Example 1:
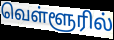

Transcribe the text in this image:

வெள்ளூரில்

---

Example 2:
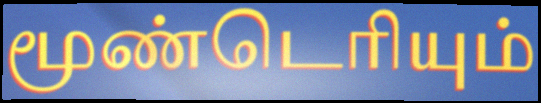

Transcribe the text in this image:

மூண்டெரியும்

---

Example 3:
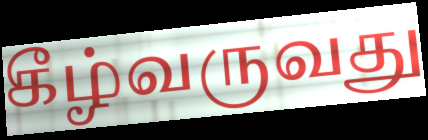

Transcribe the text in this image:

கீழ்வருவது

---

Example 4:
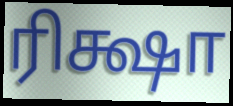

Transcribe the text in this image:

ரிக்ஷா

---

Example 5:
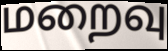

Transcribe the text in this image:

மறைவு